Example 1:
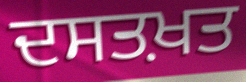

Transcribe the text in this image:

ਦਸਤ਼ਖਤ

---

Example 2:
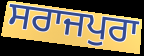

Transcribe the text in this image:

ਸਰਾਜਪੁਰਾ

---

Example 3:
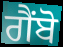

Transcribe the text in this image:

ਗੈਂਬੋ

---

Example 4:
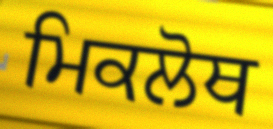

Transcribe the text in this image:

ਮਿਕਲੋਥ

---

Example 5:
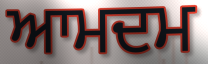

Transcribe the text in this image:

ਆਮਦਮ